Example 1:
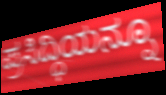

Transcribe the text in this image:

ಪ್ರಸಿದ್ಧಿಯನ್ನೂ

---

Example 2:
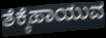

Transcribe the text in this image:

ತೆಕ್ಕೆಹಾಯುವ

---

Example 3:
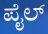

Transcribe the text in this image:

ಪೈಲ್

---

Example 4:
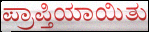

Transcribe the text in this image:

ಪ್ರಾಪ್ತಿಯಾಯಿತು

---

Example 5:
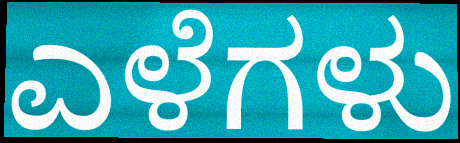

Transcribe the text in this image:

ಎಳೆಗಳು